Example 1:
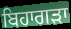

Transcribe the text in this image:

ਬਿਹਾਗੜਾ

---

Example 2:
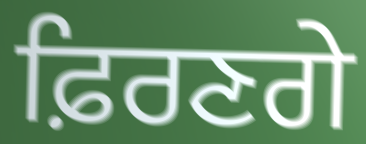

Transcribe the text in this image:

ਫ਼ਿਰਣਗੇ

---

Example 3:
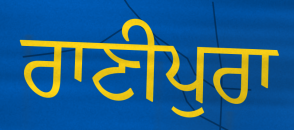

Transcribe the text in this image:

ਰਾਣੀਪੁਰਾ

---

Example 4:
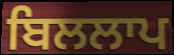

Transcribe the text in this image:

ਬਿਲਲਾਪ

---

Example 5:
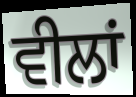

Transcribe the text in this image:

ਵੀਲਾਂ